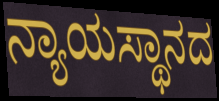
ನ್ಯಾಯಸ್ಥಾನದ